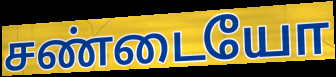
சண்டையோ